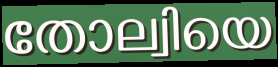
തോല്വിയെ